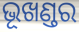
ଭୂଖଣ୍ଡର